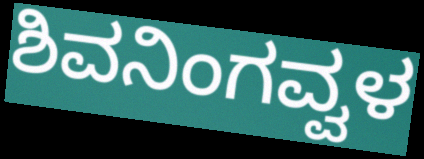
ಶಿವನಿಂಗವ್ವಳ